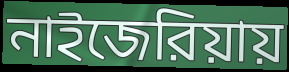
নাইজেরিয়ায়